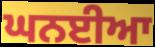
ਘਨਈਆ